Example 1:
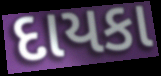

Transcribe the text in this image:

દાયકા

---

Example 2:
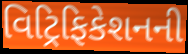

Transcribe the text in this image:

વિટ્રિફિકેશનની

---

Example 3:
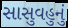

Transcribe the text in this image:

સાસુવહુનું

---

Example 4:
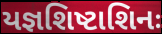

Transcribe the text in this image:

યજ્ઞશિષ્ટાશિનઃ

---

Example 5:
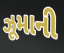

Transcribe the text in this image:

ઝૂમાની